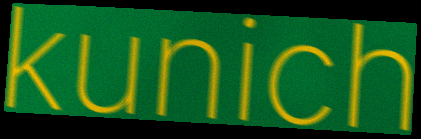
kunich